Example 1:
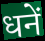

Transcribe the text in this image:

धनें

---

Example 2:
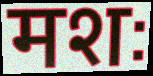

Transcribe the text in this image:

मशः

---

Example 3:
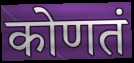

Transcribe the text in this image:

कोणतं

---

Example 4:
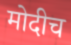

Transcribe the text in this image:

मोदीच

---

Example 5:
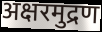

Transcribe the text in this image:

अक्षरमुद्रण